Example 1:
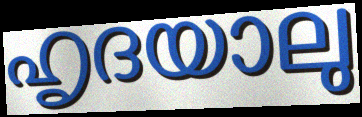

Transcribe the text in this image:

ഹൃദയാലു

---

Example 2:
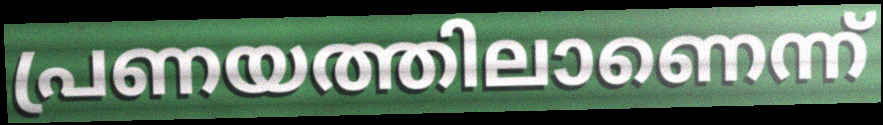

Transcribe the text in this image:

പ്രണയത്തിലാണെന്ന്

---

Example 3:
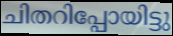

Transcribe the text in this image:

ചിതറിപ്പോയിട്ടു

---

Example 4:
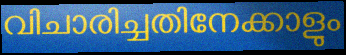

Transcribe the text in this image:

വിചാരിച്ചതിനേക്കാളും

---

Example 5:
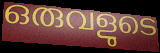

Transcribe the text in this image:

ഒരുവളുടെ